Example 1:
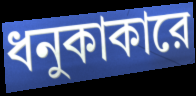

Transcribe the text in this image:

ধনুকাকারে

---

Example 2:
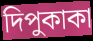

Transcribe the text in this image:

দিপুকাকা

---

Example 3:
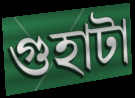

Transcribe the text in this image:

গুহাটা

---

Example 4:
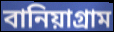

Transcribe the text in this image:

বানিয়াগ্রাম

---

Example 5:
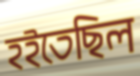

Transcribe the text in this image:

হইতেছিল